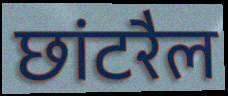
छांटरैल